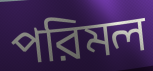
পরিমল